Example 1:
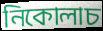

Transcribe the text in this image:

নিকোলাচ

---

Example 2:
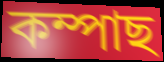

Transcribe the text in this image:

কম্পাছ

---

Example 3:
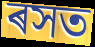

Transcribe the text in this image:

ৰসত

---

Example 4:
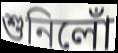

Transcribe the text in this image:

শুনিলোঁ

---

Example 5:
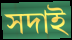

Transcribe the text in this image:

সদাই